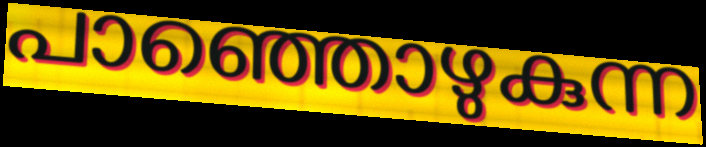
പാഞ്ഞൊഴുകുന്ന